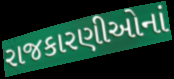
રાજકારણીઓનાં